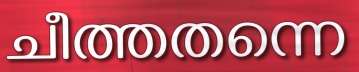
ചീത്തതന്നെ